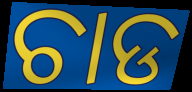
ଚାଡ